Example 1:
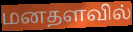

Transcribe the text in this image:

மனதளவில்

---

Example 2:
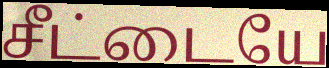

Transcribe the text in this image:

சீட்டையே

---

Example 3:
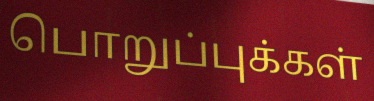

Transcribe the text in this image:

பொறுப்புக்கள்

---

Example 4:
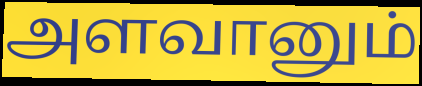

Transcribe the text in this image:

அளவானும்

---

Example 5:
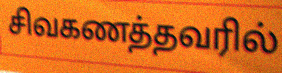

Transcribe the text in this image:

சிவகணத்தவரில்